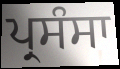
ਪ੍ਰਸੰਸਾ